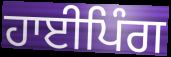
ਹਾਈਪਿੰਗ